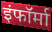
इंफॉर्मा